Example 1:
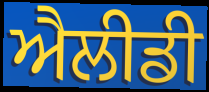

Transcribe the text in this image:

ਐਲੀਡੀ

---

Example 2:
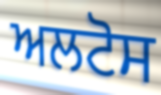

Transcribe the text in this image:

ਅਲਟੋਸ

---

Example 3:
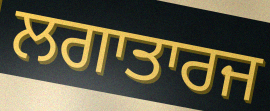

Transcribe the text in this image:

ਲਗਾਤਾਰਜ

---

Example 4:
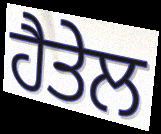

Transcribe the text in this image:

ਹੈਤੇਲ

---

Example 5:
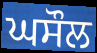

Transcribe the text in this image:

ਘਸੌਲ